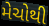
મેચોથી